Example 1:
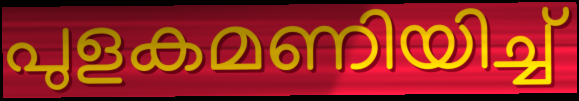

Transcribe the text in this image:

പുളകമണിയിച്ച്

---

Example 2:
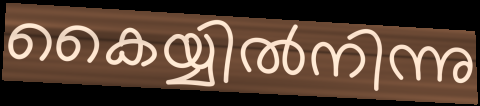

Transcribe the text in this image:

കൈയ്യിൽനിന്നു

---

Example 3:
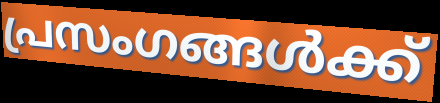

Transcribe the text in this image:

പ്രസംഗങ്ങൾക്ക്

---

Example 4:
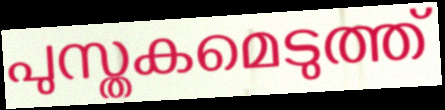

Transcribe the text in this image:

പുസ്തകമെടുത്ത്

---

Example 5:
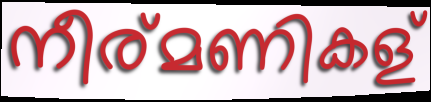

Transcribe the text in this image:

നീര്മണികള്